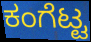
ಕಂಗೆಟ್ಟ